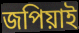
জপিয়াই